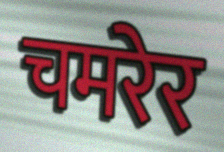
चमरेर